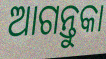
ଆଗନ୍ତୁକା